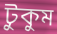
টুকুম